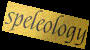
speleology